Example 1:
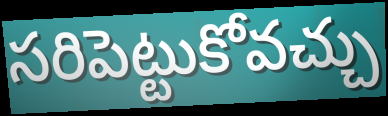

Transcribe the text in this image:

సరిపెట్టుకోవచ్చు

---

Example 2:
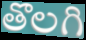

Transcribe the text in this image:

తొలగి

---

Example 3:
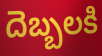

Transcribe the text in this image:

దెబ్బలకి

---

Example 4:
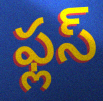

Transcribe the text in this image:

ఫ్లస్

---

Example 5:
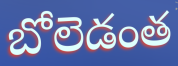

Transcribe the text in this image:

బోలెడంత